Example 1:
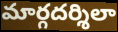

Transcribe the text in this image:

మార్గదర్శిలా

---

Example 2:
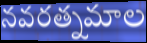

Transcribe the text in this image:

నవరత్నమాల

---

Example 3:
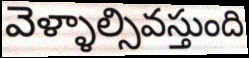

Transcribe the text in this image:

వెళ్ళాల్సివస్తుంది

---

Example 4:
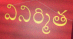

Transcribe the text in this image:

వినిర్మిత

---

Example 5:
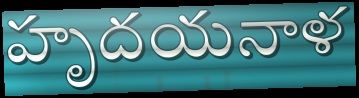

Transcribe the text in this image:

హృదయనాళ